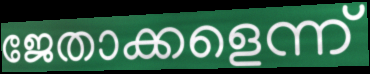
ജേതാക്കളെന്ന്